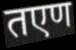
तएण